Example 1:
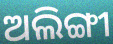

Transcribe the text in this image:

ଅଲିଙ୍ଗୀ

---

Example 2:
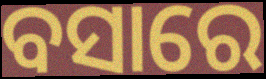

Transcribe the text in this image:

ବସାରେ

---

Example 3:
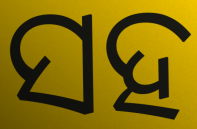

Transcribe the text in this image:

ସହ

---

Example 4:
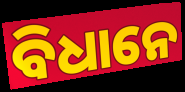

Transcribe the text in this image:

ବିଧାନେ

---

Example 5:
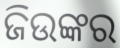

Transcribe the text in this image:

ଜିଉଙ୍କର